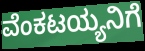
ವೆಂಕಟಯ್ಯನಿಗೆ